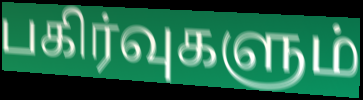
பகிர்வுகளும்